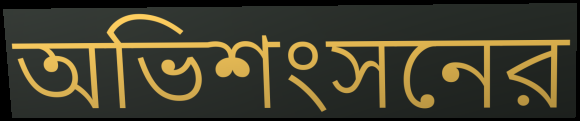
অভিশংসনের